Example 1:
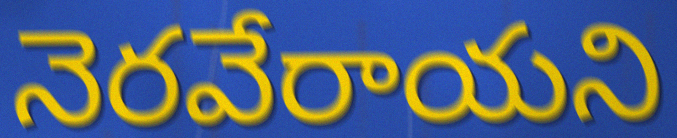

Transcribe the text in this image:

నెరవేరాయని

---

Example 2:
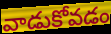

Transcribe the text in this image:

వాడుకోవడం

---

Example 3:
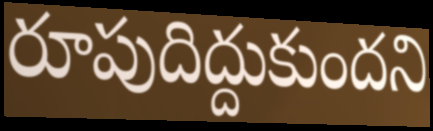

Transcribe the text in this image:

రూపుదిద్దుకుందని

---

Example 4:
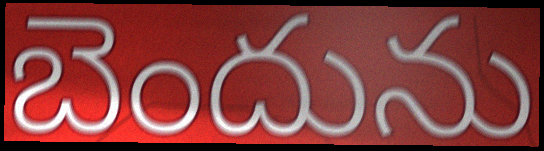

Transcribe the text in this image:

బెందును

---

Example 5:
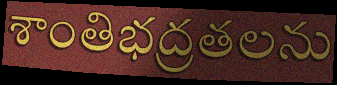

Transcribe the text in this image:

శాంతిభద్రతలను